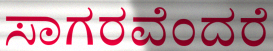
ಸಾಗರವೆಂದರೆ